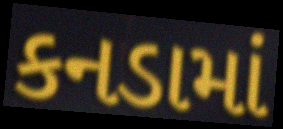
કનડામાં